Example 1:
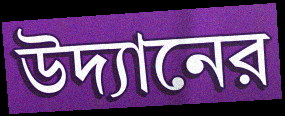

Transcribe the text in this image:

উদ্যানের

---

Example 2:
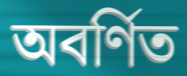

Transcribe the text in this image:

অবর্ণিত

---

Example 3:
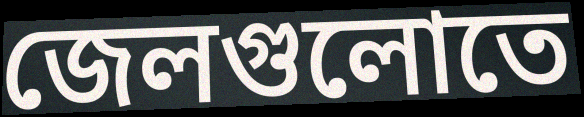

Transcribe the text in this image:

জেলগুলোতে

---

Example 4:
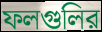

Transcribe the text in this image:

ফলগুলির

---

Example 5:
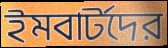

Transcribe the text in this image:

ইমবার্টদের